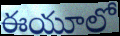
ఈయూలో